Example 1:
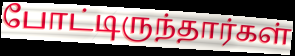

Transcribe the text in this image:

போட்டிருந்தார்கள்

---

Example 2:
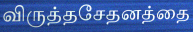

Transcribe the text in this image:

விருத்தசேதனத்தை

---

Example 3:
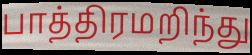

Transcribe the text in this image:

பாத்திரமறிந்து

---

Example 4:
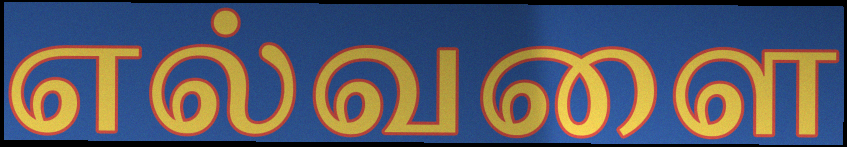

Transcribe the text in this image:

எல்வளை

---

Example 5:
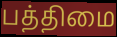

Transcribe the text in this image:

பத்திமை